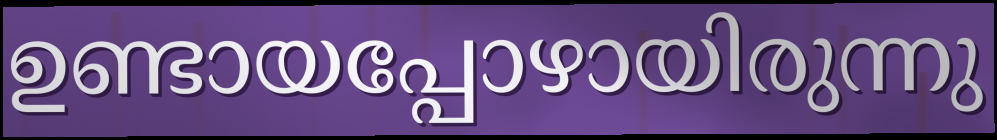
ഉണ്ടായപ്പോഴായിരുന്നു